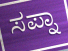
ಸಪ್ನಾ